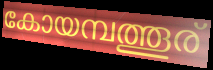
കോയമ്പത്തൂര്